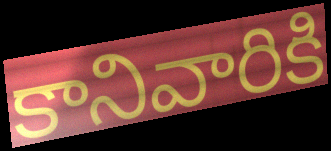
కానివారికి